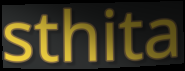
sthita